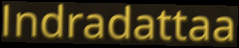
Indradattaa